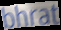
bhrat